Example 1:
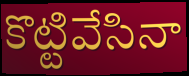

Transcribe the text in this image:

కొట్టివేసినా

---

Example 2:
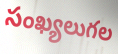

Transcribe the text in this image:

సంఖ్యలుగల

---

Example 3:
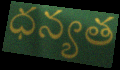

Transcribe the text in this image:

ధన్యత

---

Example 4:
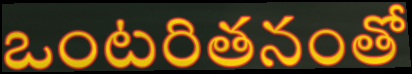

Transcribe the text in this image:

ఒంటరితనంతో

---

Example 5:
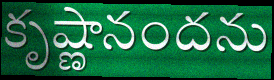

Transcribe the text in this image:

కృష్ణానందను